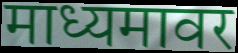
माध्यमावर